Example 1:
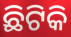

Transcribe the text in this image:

ଛିଟିକି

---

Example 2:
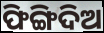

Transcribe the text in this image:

ଫିଙ୍ଗିଦିଅ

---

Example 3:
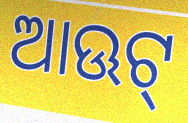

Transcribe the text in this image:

ଆଊଟ୍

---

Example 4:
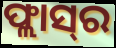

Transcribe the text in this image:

ଫ୍ଲାସ୍‌ର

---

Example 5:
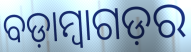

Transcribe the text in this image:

ବଡ଼ାମ୍ବାଗଡ଼ର